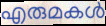
എരുമകൾ